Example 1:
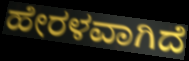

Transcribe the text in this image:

ಹೇರಳವಾಗಿದೆ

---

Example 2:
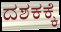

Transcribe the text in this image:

ದಶಕಕ್ಕೆ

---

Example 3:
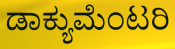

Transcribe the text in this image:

ಡಾಕ್ಯುಮೆಂಟರಿ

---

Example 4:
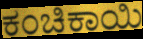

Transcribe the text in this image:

ಕಂಚಿಕಾಯಿ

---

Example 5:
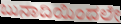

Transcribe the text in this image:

ಬುನಾದಿಯಿಂದಲೇ